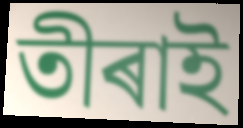
তীৰাই